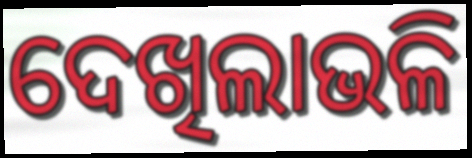
ଦେଖିଲାଭଳି